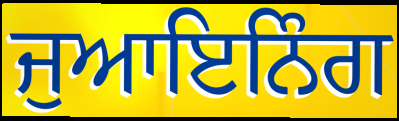
ਜੁਆਇਨਿੰਗ